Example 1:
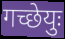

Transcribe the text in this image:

गच्छेयुः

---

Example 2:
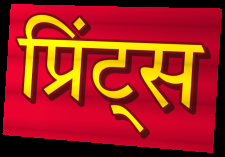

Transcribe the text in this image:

प्रिंट्स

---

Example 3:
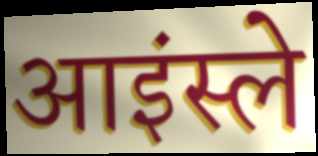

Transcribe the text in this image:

आइंस्ले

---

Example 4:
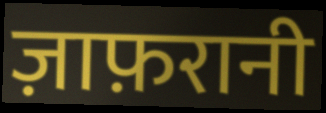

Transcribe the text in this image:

ज़ाफ़रानी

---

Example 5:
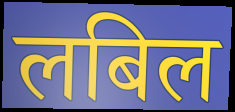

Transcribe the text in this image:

लबिल